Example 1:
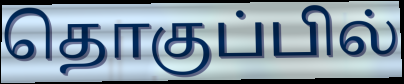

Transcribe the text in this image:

தொகுப்பில்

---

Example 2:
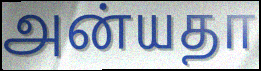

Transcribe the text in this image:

அன்யதா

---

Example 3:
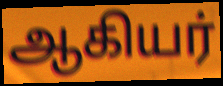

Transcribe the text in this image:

ஆகியர்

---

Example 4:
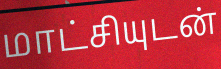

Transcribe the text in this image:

மாட்சியுடன்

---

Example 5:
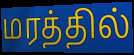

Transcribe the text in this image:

மரத்தில்